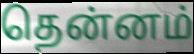
தென்னம்